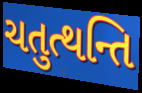
ચતુત્થન્તિ